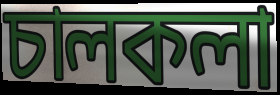
চালকলা